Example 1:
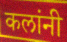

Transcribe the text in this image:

कलांनी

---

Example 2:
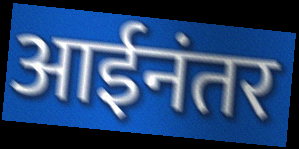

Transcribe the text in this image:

आईनंतर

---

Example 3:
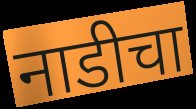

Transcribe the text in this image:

नाडीचा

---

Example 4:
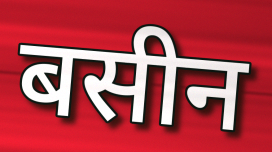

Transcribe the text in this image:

बसीन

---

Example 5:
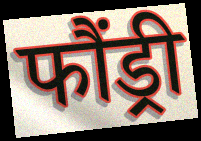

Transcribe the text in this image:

फौंड्री